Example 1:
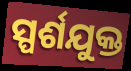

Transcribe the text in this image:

ସ୍ପର୍ଶଯୁକ୍ତ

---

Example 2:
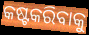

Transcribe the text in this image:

କଷ୍ଟକରିବାକୁ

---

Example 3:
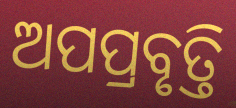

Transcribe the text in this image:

ଅପପ୍ରବୃତ୍ତି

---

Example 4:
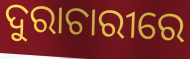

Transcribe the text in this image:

ଦୁରାଚାରୀରେ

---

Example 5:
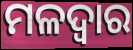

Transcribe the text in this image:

ମଳଦ୍ଵାର